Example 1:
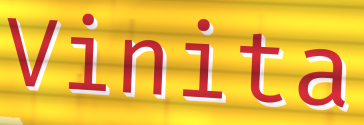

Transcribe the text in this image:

Vinita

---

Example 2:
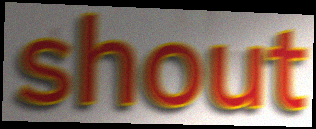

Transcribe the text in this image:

shout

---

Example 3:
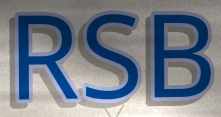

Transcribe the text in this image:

RSB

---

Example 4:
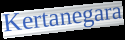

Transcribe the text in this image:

Kertanegara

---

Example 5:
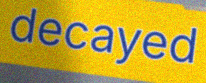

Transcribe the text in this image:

decayed